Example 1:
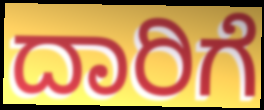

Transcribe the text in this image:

ದಾರಿಗೆ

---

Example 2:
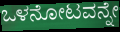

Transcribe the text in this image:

ಒಳನೋಟವನ್ನೇ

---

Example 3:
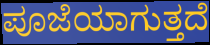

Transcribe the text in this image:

ಪೂಜೆಯಾಗುತ್ತದೆ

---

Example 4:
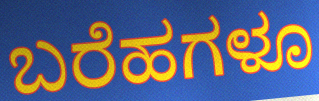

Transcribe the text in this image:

ಬರೆಹಗಳೂ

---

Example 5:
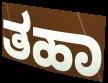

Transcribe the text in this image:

ತಹಾ